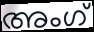
അംഗ്